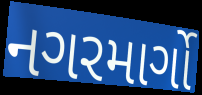
નગરમાર્ગો